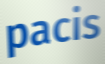
pacis